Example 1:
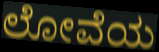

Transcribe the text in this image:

ಲೋವೆಯ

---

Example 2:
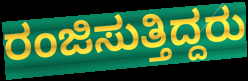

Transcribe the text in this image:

ರಂಜಿಸುತ್ತಿದ್ದರು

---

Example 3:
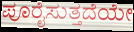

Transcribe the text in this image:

ಪೂರೈಸುತ್ತದೆಯೇ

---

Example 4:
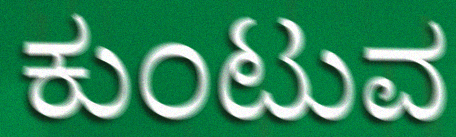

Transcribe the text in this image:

ಕುಂಟುವ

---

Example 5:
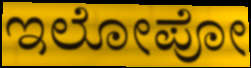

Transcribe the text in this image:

ಇಲೋಪೋ